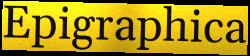
Epigraphica